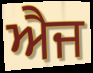
ਐਜ